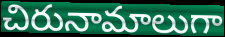
చిరునామాలుగా